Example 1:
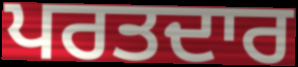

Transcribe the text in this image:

ਪਰਤਦਾਰ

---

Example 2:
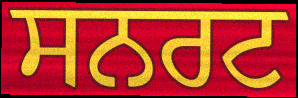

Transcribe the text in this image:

ਸਨਰਟ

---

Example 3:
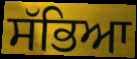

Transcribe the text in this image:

ਸੱਭਿਆ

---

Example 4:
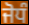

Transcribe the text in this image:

ਜੋਧੰ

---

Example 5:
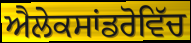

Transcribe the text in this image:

ਐਲੇਕਸਾਂਡਰੋਵਿੱਚ